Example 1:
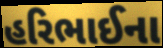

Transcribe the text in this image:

હરિભાઈના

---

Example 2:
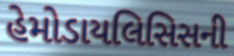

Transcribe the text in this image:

હેમોડાયલિસિસની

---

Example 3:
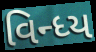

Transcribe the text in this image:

વિન્ધ્ય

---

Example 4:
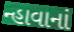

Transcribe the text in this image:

ન્હાવાનાં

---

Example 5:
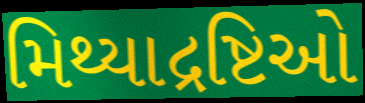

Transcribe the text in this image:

મિથ્યાદ્રષ્ટિઓ